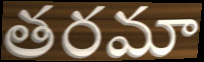
తరమా